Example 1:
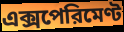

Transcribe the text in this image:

এক্সপেরিমেণ্ট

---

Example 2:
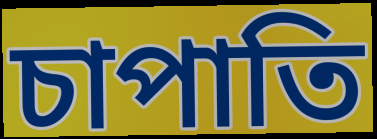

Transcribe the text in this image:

চাপাতি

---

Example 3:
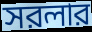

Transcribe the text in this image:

সরলার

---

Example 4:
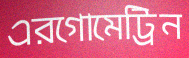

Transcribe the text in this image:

এরগোমেট্রিন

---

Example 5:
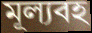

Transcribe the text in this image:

মূল্যবহ